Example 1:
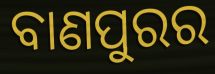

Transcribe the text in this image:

ବାଣପୁରର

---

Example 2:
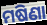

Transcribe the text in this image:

ମଷିଣା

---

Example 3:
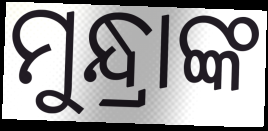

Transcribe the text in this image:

ମୁନ୍ଧ୍ରାଙ୍କ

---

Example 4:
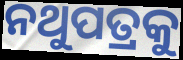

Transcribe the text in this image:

ନଥୁପତ୍ରକୁ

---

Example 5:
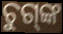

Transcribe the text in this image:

ଚୁଗ୍‌ଙ୍କ